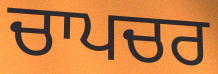
ਚਾਪਚਰ